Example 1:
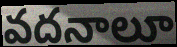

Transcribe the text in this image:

వదనాలూ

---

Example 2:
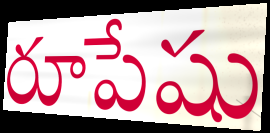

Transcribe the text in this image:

రూపేషు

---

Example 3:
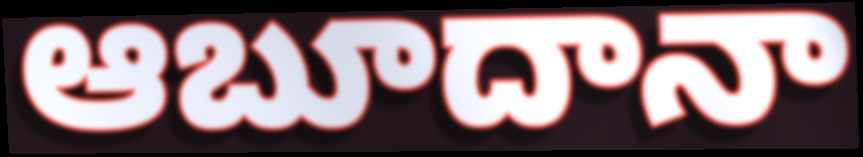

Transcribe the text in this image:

ఆబూదానా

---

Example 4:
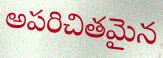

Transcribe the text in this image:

అపరిచితమైన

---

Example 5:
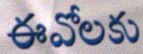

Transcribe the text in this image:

ఈవోలకు